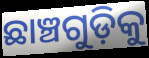
ଛାଞ୍ଚଗୁଡ଼ିକୁ